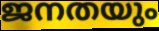
ജനതയും